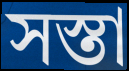
সস্তা